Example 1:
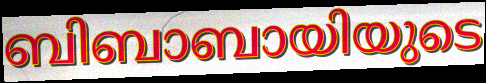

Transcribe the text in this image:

ബിബാബായിയുടെ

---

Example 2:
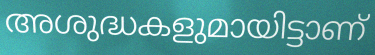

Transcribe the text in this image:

അശുദ്ധകളുമായിട്ടാണ്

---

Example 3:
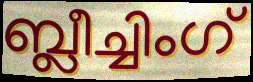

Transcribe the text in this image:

ബ്ലീച്ചിംഗ്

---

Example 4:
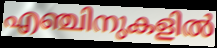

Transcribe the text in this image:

എഞ്ചിനുകളിൽ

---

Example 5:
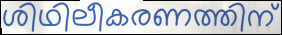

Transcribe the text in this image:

ശിഥിലീകരണത്തിന്